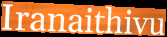
Iranaithivu